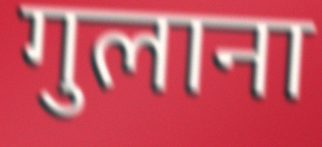
गुलाना